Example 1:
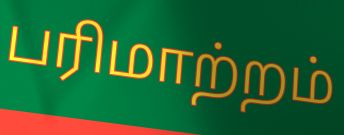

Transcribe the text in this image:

பரிமாற்றம்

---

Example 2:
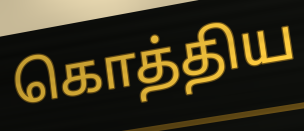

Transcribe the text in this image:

கொத்திய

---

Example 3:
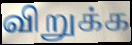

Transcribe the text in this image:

விறுக்க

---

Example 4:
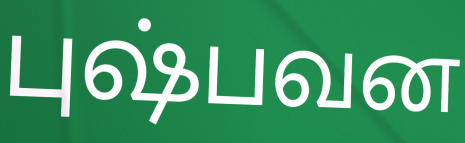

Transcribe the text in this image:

புஷ்பவன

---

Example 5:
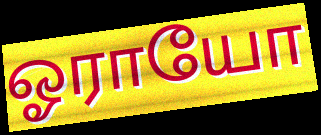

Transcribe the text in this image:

ஓராயோ